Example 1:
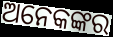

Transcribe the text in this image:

ଅନେକଙ୍କର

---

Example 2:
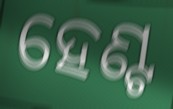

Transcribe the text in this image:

ହେଣ୍ଟ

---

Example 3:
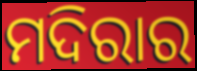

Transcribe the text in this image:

ମଦିରାର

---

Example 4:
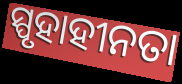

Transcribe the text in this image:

ସ୍ପୃହାହୀନତା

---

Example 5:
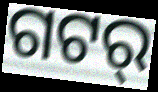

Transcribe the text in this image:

ଗଟର୍